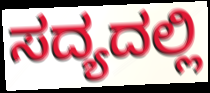
ಸದ್ಯದಲ್ಲಿ